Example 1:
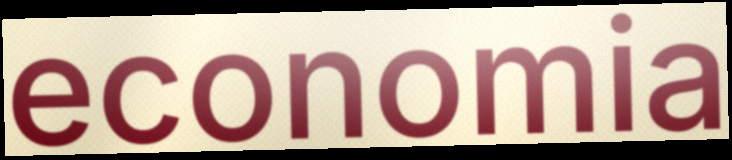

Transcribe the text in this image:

economia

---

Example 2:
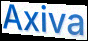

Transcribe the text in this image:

Axiva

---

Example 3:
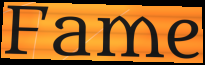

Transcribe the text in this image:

Fame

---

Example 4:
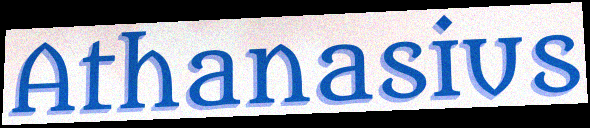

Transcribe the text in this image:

Athanasius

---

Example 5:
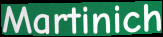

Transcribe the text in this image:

Martinich